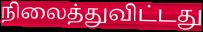
நிலைத்துவிட்டது